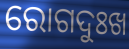
ରୋଗଦୁଃଖ